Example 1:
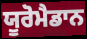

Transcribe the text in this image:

ਯੂਰੋਮੈਡਾਨ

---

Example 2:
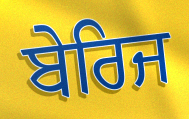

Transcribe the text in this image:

ਬੇਰਿਜ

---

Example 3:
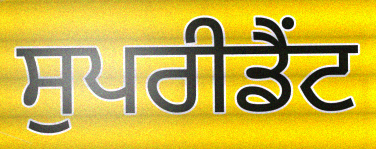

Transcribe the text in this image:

ਸੁਪਰੀਡੈਂਟ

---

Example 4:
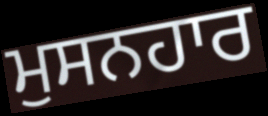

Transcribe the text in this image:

ਮੁਸਨਹਾਰ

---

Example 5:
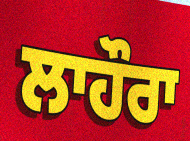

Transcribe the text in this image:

ਲਾਹੌਰਾ